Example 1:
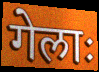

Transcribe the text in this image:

गेलाः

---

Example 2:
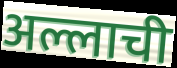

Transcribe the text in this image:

अल्लाची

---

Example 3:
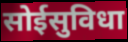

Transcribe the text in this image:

सोईसुविधा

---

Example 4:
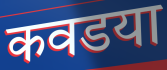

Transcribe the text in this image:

कवडया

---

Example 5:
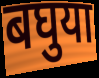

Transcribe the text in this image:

बघुया